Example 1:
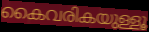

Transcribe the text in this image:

കൈവരികയുള്ളൂ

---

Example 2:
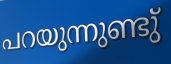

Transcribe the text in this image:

പറയുന്നുണ്ടു്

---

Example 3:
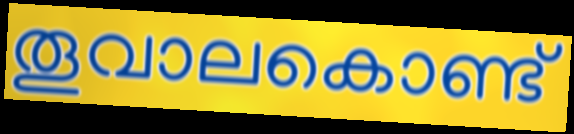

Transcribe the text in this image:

തൂവാലകൊണ്ട്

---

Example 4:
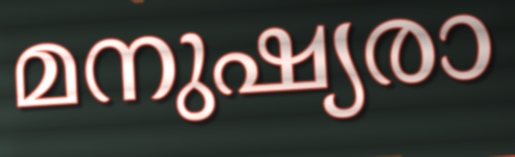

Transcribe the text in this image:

മനുഷ്യരാ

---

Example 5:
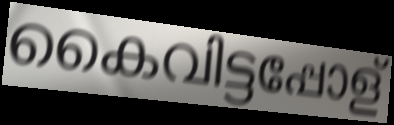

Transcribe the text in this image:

കൈവിട്ടപ്പോള്